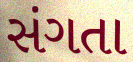
સંગતા